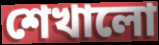
শেখালো